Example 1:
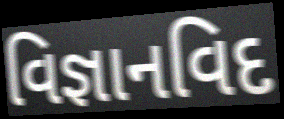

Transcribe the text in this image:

વિજ્ઞાનવિદ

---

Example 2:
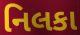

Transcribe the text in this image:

નિલકા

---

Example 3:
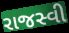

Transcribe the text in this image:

રાજસ્વી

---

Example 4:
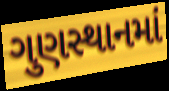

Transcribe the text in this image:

ગુણસ્થાનમાં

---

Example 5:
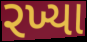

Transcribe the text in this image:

રખ્યા